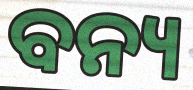
ବନ୍ୟ